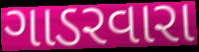
ગાડરવારા